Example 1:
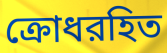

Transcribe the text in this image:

ক্রোধরহিত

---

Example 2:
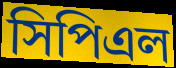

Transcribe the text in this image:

সিপিএল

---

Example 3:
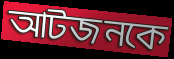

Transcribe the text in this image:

আটজনকে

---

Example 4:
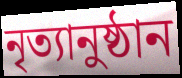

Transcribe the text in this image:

নৃত্যানুষ্ঠান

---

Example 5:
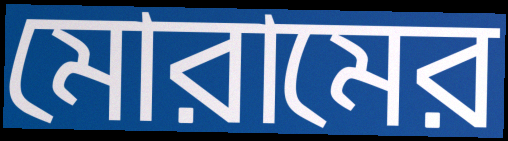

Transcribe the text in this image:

মোরামের